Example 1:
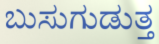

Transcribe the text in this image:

ಬುಸುಗುಡುತ್ತ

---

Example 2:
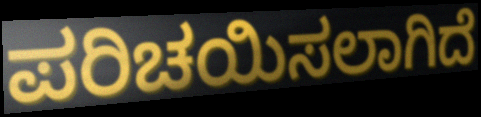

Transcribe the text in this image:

ಪರಿಚಯಿಸಲಾಗಿದೆ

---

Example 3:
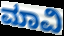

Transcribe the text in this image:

ಮಾವಿ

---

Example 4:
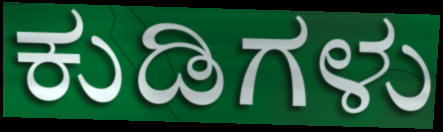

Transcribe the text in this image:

ಕುಡಿಗಳು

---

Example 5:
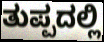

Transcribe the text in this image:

ತುಪ್ಪದಲ್ಲಿ